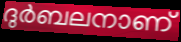
ദുർബലനാണ്